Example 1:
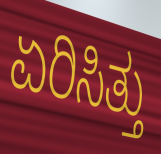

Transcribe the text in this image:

ಏರಿಸಿತ್ತು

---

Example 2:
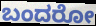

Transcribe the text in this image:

ಬಂದರೋ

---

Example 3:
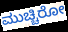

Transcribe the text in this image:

ಮುಚ್ಚಿರೋ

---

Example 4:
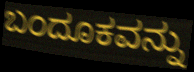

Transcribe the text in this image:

ಬಂದೂಕವನ್ನು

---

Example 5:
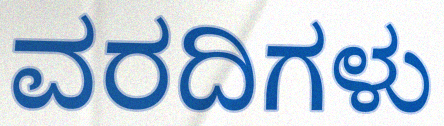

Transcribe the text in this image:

ವರದಿಗಳು